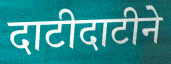
दाटीदाटीने